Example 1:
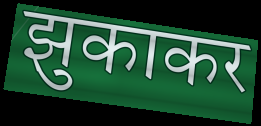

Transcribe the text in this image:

झुकाकर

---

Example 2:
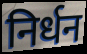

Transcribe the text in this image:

निर्धन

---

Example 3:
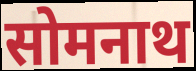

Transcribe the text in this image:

सोमनाथ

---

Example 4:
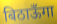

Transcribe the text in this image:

बिठाऊँगा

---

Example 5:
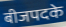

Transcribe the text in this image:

बीजपदके